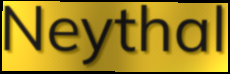
Neythal